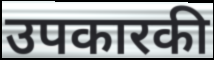
उपकारकी